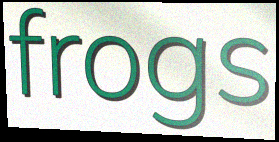
frogs